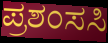
ಪ್ರಶಂಸಸಿ